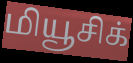
மியூசிக்